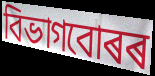
বিভাগবোৰৰ